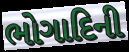
ભોગાદિની